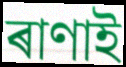
ৰাণাই